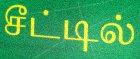
சீட்டில்